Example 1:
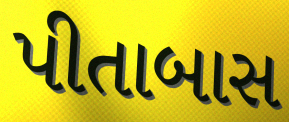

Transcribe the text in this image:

પીતાબાસ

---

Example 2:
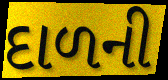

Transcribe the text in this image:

દાળની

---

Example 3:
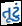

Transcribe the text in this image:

તૂટું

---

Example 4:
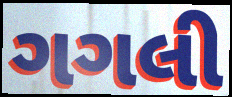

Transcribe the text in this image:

ગગલી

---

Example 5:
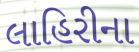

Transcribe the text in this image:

લાહિરીના